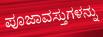
ಪೂಜಾವಸ್ತುಗಳನ್ನು